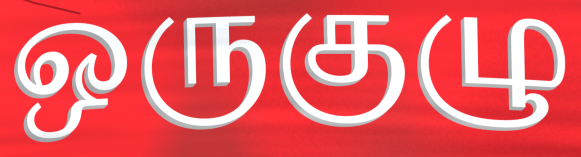
ஒருகுழு